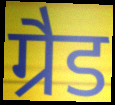
ग्रैड